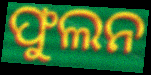
ଫୁଲନ